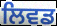
ਲਿਵਡ